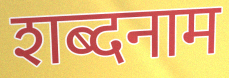
शब्दनाम